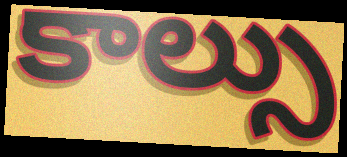
కాల్సు